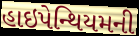
હાઇપેન્થિયમની